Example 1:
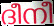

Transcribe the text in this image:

ദീനീ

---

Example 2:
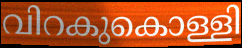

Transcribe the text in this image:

വിറകുകൊള്ളി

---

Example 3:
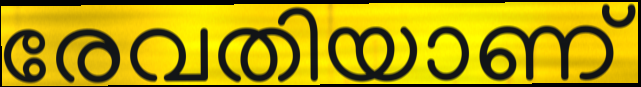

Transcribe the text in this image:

രേവതിയാണ്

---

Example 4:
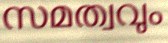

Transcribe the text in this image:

സമത്വവും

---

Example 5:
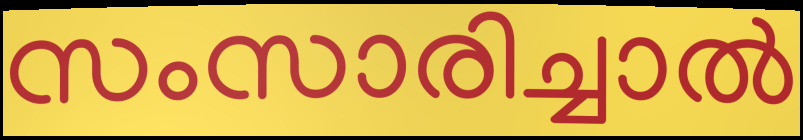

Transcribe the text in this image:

സംസാരിച്ചാൽ